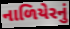
નાળિયેરનું